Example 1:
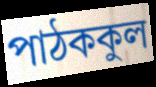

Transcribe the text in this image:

পাঠককুল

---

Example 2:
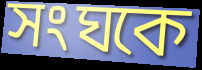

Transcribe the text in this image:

সংঘকে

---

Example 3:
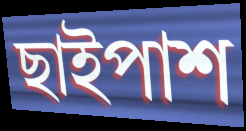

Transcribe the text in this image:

ছাইপাশ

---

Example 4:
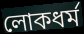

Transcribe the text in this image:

লোকধর্ম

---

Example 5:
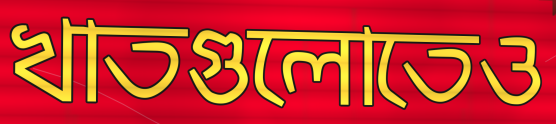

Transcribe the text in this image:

খাতগুলোতেও